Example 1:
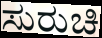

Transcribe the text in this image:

ಸುರುಚಿ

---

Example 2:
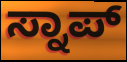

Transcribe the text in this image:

ಸ್ನಾಪ್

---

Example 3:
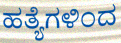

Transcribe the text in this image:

ಹತ್ಯೆಗಳಿಂದ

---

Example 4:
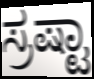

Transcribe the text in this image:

ಸ್ರಷ್ಟಾ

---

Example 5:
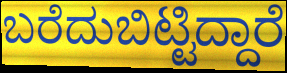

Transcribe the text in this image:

ಬರೆದುಬಿಟ್ಟಿದ್ದಾರೆ